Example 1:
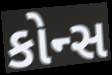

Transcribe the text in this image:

કોન્સ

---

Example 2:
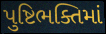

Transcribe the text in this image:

પુષ્ટિભક્તિમાં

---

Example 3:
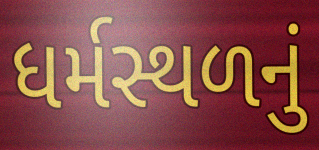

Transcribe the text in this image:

ધર્મસ્થળનું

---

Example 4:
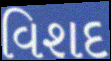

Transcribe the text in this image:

વિશદ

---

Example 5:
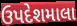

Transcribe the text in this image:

ઉપદેશમાલા